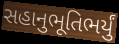
સહાનુભૂતિભર્યું